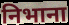
निभाना